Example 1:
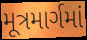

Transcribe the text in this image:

મૂત્રમાર્ગમાં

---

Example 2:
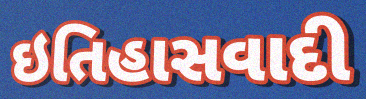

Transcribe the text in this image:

ઇતિહાસવાદી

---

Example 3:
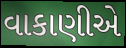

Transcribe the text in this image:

વાકાણીએ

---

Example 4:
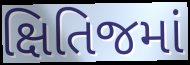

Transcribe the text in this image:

ક્ષિતિજમાં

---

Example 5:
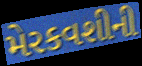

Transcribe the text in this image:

મેરકવશીની